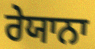
ਰੇਯਾਨਾ